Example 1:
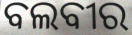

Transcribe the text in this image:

ବଲବୀର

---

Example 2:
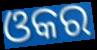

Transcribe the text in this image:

ଓକର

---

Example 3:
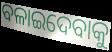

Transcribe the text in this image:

ବଳାଇଦେବାକୁ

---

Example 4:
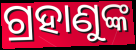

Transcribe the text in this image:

ଗ୍ରହାଣୁଙ୍କ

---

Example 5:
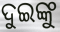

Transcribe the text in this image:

ଦୁଇଙ୍କୁ